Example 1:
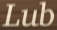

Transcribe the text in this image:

Lub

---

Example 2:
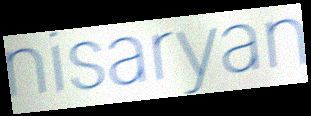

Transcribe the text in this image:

nisaryan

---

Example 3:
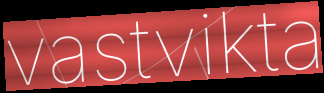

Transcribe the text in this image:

vastvikta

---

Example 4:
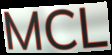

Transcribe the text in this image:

MCL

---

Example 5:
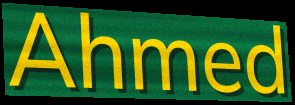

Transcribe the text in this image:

Ahmed